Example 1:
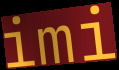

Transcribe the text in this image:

imi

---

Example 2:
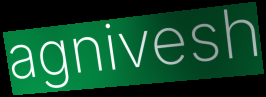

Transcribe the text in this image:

agnivesh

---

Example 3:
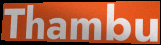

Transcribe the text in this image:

Thambu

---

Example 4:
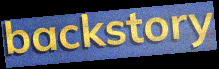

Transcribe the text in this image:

backstory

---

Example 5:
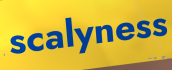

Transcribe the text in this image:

scalyness